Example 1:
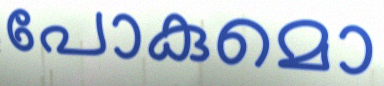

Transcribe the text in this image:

പോകുമൊ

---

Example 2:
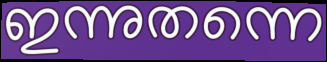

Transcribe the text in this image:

ഇന്നുതന്നെ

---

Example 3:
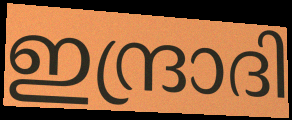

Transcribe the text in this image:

ഇന്ദ്രാദി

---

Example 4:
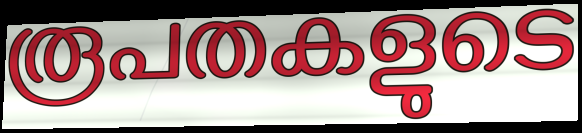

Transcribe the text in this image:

രൂപതകളുടെ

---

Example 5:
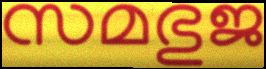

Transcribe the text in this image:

സമഭുജ